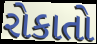
રોકાતો